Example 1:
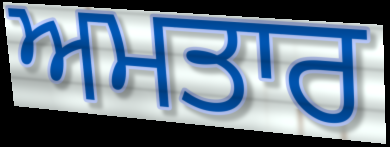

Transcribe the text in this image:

ਅਮਤਾਰ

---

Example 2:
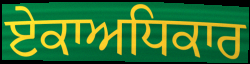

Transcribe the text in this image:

ਏਕਾਅਧਿਕਾਰ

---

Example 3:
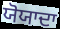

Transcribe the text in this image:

ਯੋਯਾਦਾ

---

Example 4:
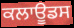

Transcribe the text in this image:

ਕਲਾਊਡਸ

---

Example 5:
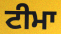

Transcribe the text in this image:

ਟੀਮਾ